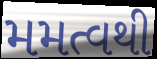
મમત્વથી